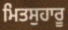
ਮਿਤਸੁਹਾਰੂ